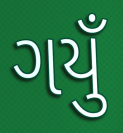
ગયુઁ